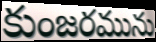
కుంజరమును